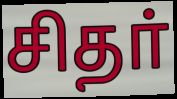
சிதர்